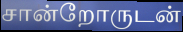
சான்றோருடன்